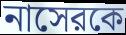
নাসেরকে